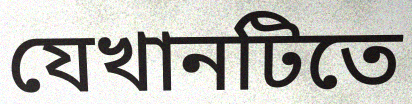
যেখানটিতে